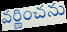
వర్ణించను